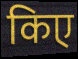
किए